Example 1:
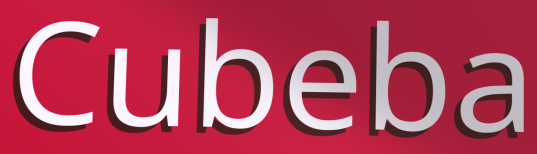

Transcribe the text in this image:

Cubeba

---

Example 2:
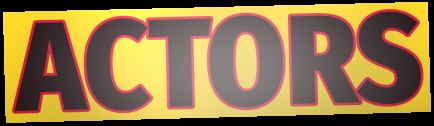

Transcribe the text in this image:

ACTORS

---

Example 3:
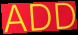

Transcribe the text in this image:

ADD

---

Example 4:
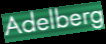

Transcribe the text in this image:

Adelberg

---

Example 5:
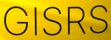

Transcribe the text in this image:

GISRS